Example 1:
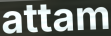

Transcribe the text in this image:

attam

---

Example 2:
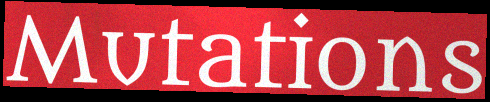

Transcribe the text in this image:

Mutations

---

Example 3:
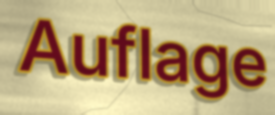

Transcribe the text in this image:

Auflage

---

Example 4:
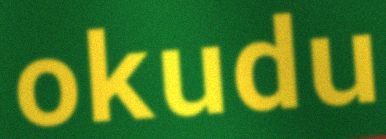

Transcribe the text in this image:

okudu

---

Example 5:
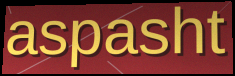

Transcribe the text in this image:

aspasht